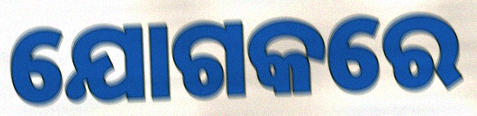
ଯୋଗକରେ